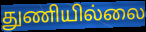
துணியில்லை